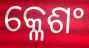
କ୍ଳେଶଂ